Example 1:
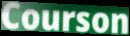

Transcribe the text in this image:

Courson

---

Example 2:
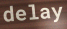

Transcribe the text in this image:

delay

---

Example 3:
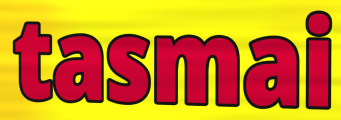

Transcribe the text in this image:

tasmai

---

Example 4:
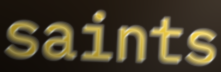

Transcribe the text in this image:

saints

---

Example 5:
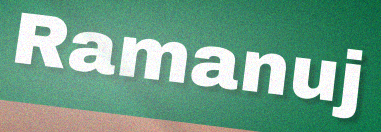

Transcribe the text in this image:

Ramanuj